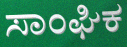
ಸಾಂಘಿಕ